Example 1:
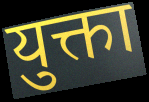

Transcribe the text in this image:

युक्ता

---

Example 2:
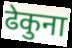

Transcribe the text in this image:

ढेकुना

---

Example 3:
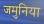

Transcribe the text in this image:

जमुनिया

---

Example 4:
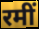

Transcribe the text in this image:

रमीं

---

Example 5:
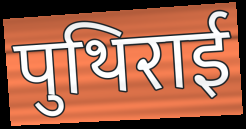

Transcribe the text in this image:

पुथिराई